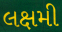
લક્ષમી